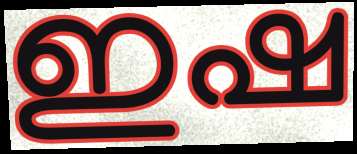
ഇഷ